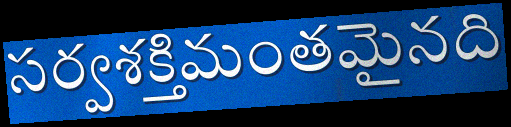
సర్వశక్తిమంతమైనది